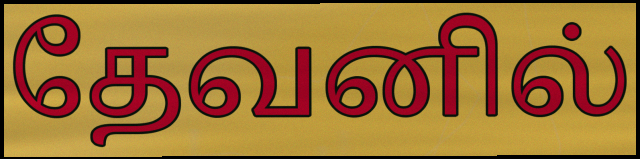
தேவனில்